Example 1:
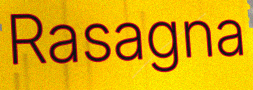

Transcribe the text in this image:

Rasagna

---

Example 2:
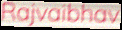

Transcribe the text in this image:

Rajvaibhav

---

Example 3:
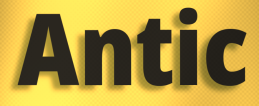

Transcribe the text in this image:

Antic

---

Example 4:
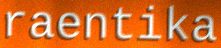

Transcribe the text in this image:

raentika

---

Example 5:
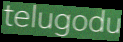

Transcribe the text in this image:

telugodu